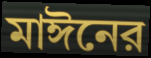
মাঈনের